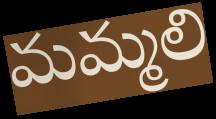
మమ్మలి